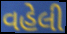
વહેલી